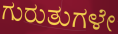
ಗುರುತುಗಳೇ